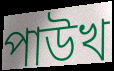
পাউখ